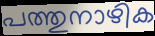
പത്തുനാഴിക